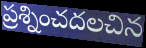
ప్రశ్నించదలచిన